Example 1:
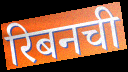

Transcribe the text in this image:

रिबनची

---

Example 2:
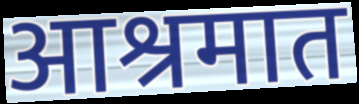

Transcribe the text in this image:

आश्रमात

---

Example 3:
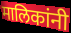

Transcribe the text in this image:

मालिकांनी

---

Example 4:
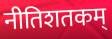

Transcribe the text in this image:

नीतिशतकम्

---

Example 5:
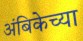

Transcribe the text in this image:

अंबिकेच्या